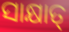
ସାକ୍ଷାତ୍